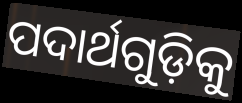
ପଦାର୍ଥଗୁଡ଼ିକୁ